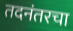
तदनंतरचा